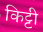
किट्टी